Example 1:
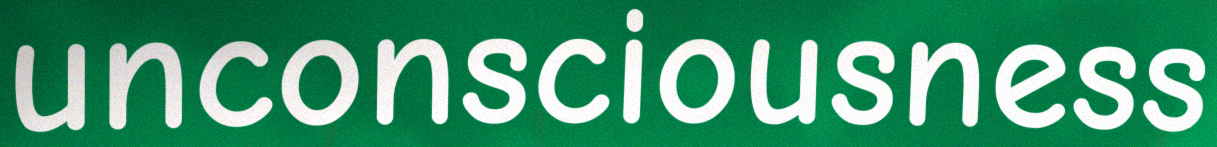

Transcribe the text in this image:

unconsciousness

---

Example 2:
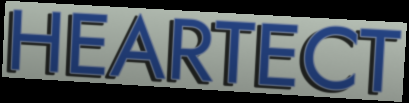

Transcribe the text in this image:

HEARTECT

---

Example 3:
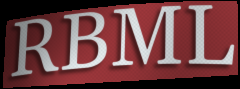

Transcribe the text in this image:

RBML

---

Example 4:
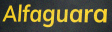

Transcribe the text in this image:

Alfaguara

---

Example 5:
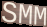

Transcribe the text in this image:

SMM